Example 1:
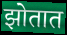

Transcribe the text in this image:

झोतात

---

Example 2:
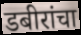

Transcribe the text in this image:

डबीरांचा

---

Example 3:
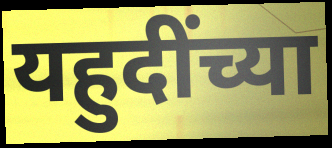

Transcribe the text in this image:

यहुदींच्या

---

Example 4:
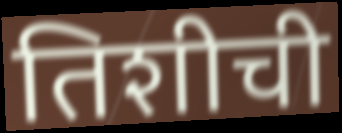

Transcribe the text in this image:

तिशीची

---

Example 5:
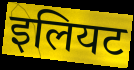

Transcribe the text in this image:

इलियट